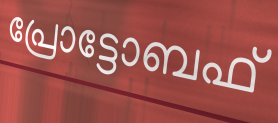
പ്രോട്ടോബഫ്